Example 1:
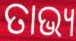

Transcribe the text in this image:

ତାଭ୍ୟ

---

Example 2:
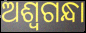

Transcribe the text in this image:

ଅଶ୍ୱଗନ୍ଧା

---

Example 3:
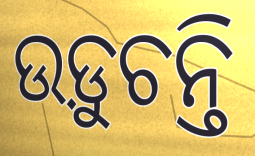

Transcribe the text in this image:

ଉଡ଼ୁଚନ୍ତି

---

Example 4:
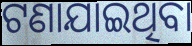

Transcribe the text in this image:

ଟଣାଯାଇଥିବା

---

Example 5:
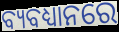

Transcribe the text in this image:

ବ୍ୟବଧ୍ୟାନରେ